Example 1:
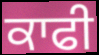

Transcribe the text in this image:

ਕਾਫੀ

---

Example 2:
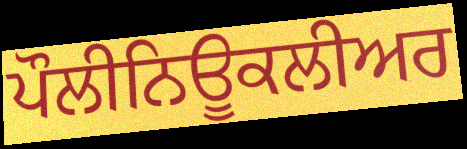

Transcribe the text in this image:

ਪੌਲੀਨਿਊਕਲੀਅਰ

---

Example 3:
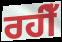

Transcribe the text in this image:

ਰਹੀਁ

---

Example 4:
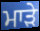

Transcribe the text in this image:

ਮਾੜੇ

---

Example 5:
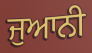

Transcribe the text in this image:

ਜੁਆਨੀ